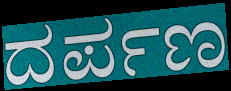
ದರ್ಪಣ